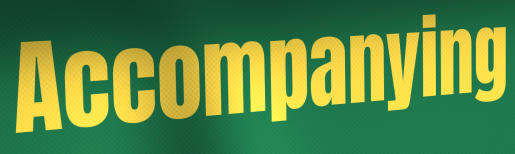
Accompanying